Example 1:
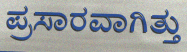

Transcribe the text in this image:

ಪ್ರಸಾರವಾಗಿತ್ತು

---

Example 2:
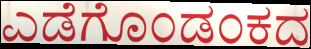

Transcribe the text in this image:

ಎಡೆಗೊಂಡಂಕದ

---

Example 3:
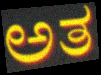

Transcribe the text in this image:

ಅತ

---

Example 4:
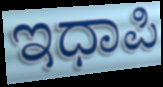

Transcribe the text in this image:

ಇಧಾಪಿ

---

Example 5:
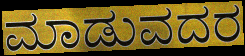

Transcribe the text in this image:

ಮಾಡುವದರ